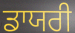
ਡਾਯਰੀ